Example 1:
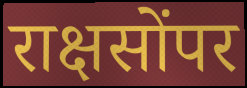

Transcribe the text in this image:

राक्षसोंपर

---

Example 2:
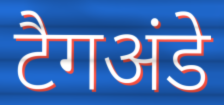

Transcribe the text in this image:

टैगअंडे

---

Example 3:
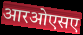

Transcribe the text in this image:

आरओएसए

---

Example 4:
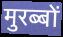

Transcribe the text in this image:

मुरब्बों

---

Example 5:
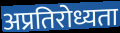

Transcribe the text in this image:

अप्रतिरोध्यता